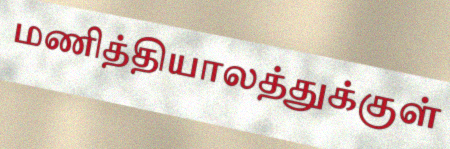
மணித்தியாலத்துக்குள்